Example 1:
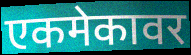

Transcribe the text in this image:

एकमेकावर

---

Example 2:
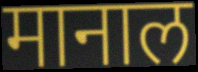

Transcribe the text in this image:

मानाल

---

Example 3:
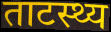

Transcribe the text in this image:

ताटस्थ्य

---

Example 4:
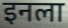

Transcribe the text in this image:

इनला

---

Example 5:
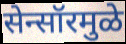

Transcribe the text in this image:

सेन्सॉरमुळे